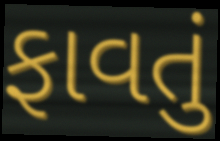
ફાવતું